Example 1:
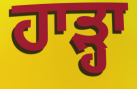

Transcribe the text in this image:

ਹਾੜ੍ਹਾ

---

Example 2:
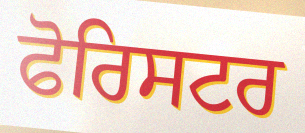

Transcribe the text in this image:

ਫੋਰਿਸਟਰ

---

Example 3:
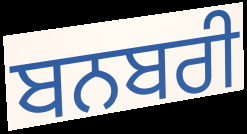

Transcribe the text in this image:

ਬਨਬਰੀ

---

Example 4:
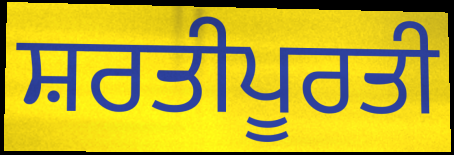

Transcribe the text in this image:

ਸ਼ਰਤੀਪੂਰਤੀ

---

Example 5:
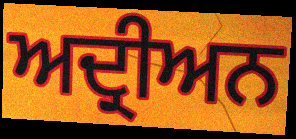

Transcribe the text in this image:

ਅਦ੍ਰੀਅਨ